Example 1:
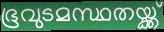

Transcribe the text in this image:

ഭൂവുടമസ്ഥതയ്ക്ക്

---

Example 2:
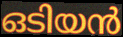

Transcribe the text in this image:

ഒടിയൻ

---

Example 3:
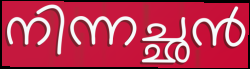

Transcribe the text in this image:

നിന്നച്ഛൻ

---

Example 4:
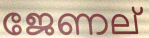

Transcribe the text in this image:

ജേണല്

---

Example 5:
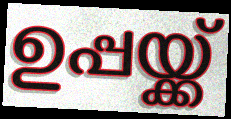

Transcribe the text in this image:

ഉപ്പയ്ക്ക്